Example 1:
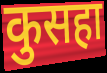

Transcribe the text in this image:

कुसहा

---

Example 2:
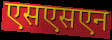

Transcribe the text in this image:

एसएसएन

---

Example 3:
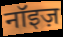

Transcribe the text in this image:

नॉइज़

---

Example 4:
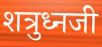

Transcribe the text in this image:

शत्रुध्नजी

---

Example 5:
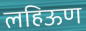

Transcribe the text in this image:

लहिऊण